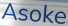
Asoke